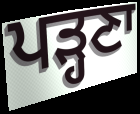
ਪੜ੍ਹਣਾ